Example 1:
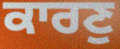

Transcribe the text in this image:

ਕਾਰਣੁ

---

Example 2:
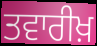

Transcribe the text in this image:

ਤਵਾਰੀਖ਼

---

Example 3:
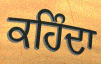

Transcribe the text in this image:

ਕਹਿੰਦਾ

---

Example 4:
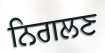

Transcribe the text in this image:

ਨਿਗਲਣ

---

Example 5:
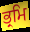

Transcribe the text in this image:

ਭ੍ਰਮਿ